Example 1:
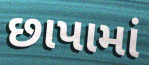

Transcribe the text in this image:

છાપામાં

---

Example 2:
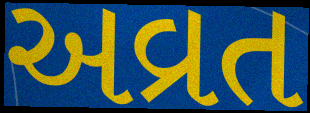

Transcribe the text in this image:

અવ્રત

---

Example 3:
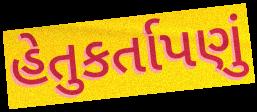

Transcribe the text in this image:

હેતુકર્તાપણું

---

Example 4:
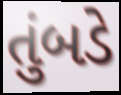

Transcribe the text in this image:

તુંબડે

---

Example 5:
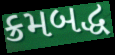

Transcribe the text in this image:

ક્રમબદ્ધ